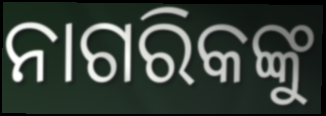
ନାଗରିକଙ୍କୁ